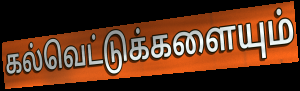
கல்வெட்டுக்களையும்